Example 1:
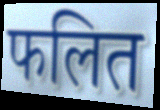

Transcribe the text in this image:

फलित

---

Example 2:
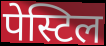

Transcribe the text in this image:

पेस्टिल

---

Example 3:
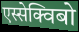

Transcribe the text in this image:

एस्सेक्विबो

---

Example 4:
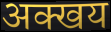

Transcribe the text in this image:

अक्खय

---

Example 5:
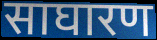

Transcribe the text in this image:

साघारण